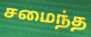
சமைந்த